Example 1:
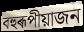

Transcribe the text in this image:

বহুৰূপীয়াজন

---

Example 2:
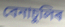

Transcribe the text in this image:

বেনাচুলিৰ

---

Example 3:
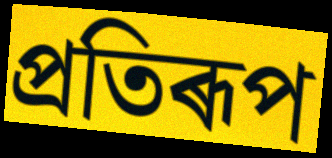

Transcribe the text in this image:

প্ৰতিৰূপ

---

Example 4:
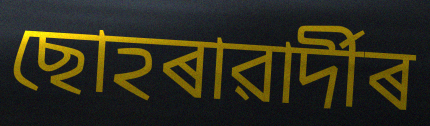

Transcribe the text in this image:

ছোহৰাৱাৰ্দীৰ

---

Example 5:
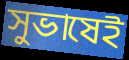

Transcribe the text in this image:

সুভাষেই